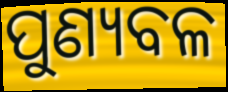
ପୁଣ୍ୟବଳ